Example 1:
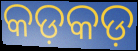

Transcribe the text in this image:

କଡ଼କଡ଼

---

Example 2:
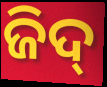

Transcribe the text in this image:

ଜିଦ୍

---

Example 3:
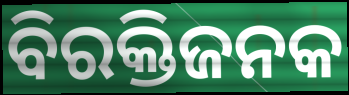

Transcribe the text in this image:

ବିରକ୍ତିଜନକ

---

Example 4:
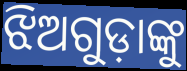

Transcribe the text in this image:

ଝିଅଗୁଡ଼ାଙ୍କୁ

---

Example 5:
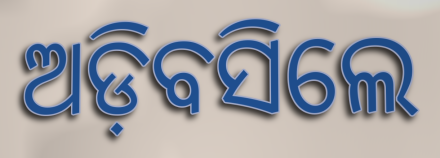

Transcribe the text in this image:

ଅଡ଼ିବସିଲେ